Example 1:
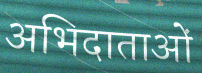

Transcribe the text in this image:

अभिदाताओं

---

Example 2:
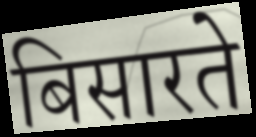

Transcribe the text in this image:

बिसारते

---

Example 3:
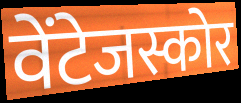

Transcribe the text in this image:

वेंटेजस्कोर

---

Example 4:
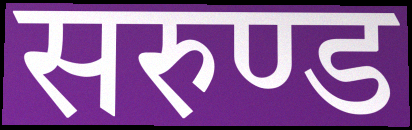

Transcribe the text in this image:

सरुण्ड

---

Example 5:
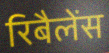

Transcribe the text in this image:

रिबैलेंस